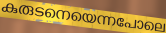
കുരുടനെയെന്നപോലെ